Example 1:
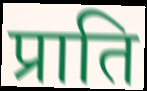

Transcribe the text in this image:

प्राति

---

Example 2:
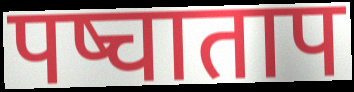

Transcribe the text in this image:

पष्चाताप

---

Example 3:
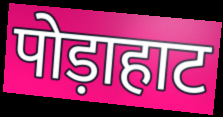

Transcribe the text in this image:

पोड़ाहाट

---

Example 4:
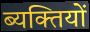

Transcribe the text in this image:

ब्यक्तियों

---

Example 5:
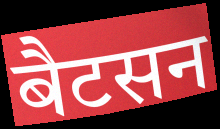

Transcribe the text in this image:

बैटसन